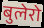
बुलेरो